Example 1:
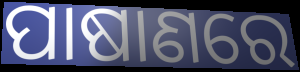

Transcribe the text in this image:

ପାଷାଣରେ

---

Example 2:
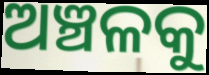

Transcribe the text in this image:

ଅଞ୍ଚଳକୁ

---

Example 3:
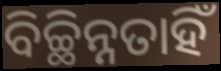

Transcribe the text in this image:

ବିଚ୍ଛିନ୍ନତାହିଁ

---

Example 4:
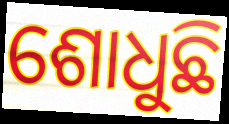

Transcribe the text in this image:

ଶୋଧୁଛି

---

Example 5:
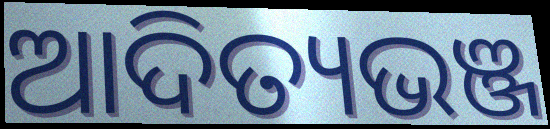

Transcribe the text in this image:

ଆଦିତ୍ୟଭଞ୍ଜ